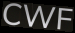
CWF